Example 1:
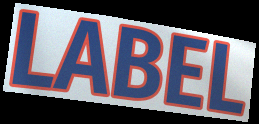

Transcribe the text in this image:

LABEL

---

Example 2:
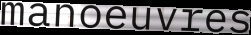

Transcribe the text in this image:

manoeuvres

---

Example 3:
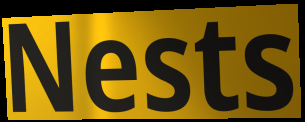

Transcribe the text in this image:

Nests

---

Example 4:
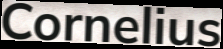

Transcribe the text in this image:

Cornelius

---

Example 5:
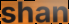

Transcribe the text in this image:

shan